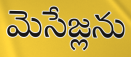
మెసేజ్లను